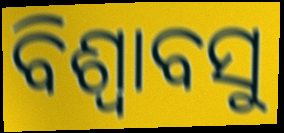
ବିଶ୍ୱାବସୁ